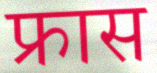
फ्रास